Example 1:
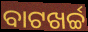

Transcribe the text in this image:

ବାଟଖର୍ଚ୍ଚ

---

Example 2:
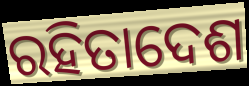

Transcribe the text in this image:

ରହିତାଦେଶ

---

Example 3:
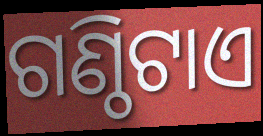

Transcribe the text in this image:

ଗଣ୍ଠିଟାଏ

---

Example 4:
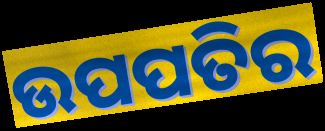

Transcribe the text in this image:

ଉପପତିର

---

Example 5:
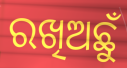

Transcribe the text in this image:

ରଖିଅଛୁଁ